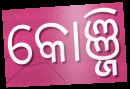
କୋଞ୍ଜି